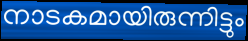
നാടകമായിരുന്നിട്ടും